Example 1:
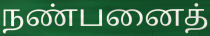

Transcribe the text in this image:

நண்பனைத்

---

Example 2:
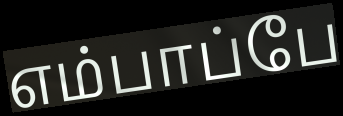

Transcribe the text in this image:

எம்பாப்பே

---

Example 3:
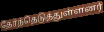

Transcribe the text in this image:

தேர்ந்தெடுத்துள்ளனர்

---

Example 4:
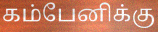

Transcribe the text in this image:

கம்பேனிக்கு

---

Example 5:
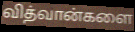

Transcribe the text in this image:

வித்வான்களை